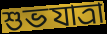
শুভযাত্রা